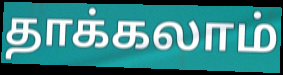
தாக்கலாம்